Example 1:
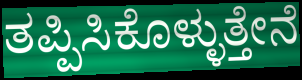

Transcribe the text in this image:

ತಪ್ಪಿಸಿಕೊಳ್ಳುತ್ತೇನೆ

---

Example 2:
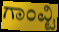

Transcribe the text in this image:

ಗಾಂವ್ಟಿ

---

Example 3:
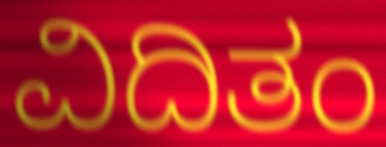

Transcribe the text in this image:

ವಿದಿತಂ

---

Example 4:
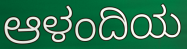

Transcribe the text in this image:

ಆಳಂದಿಯ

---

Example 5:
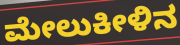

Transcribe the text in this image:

ಮೇಲುಕೀಳಿನ